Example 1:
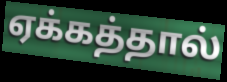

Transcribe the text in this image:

ஏக்கத்தால்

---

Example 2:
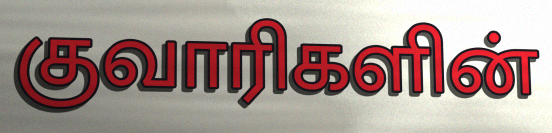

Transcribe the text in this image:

குவாரிகளின்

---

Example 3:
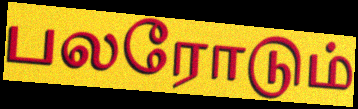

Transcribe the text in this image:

பலரோடும்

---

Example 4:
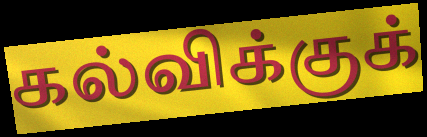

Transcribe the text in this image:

கல்விக்குக்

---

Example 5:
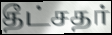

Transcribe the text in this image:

தீட்சதர்